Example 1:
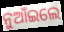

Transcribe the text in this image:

ନୁଆଁଇଲେ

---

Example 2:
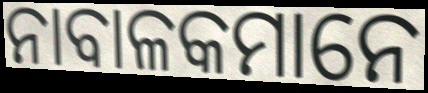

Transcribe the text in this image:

ନାବାଳକମାନେ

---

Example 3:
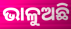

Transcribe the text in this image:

ଭାଳୁଅଛି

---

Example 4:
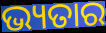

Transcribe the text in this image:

ଭ୍ୟତାର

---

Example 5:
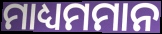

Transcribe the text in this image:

ମାଧ୍ୟମମାନ